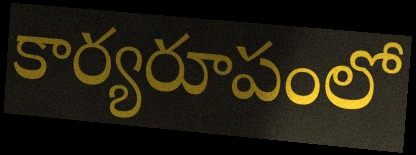
కార్యరూపంలో